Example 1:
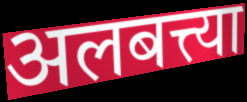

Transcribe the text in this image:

अलबत्त्या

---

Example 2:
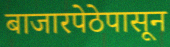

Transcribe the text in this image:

बाजारपेठेपासून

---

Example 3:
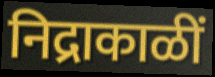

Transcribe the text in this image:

निद्राकाळीं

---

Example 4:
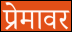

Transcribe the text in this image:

प्रेमावर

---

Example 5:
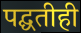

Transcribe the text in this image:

पद्घतीही